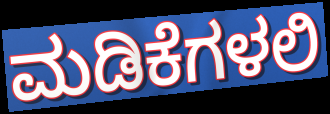
ಮಡಿಕೆಗಳಲಿ